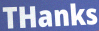
THanks